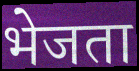
भेजता